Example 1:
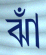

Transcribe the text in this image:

ঝাঁ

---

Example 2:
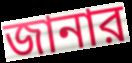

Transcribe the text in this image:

জানার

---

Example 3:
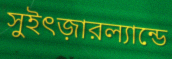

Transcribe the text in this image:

সুইৎজ়ারল্যান্ডে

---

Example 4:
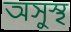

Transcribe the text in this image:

অসুস্থ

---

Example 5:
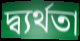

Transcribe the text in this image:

দ্ব্যর্থতা